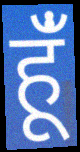
हूँं